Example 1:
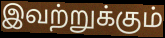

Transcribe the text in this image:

இவற்றுக்கும்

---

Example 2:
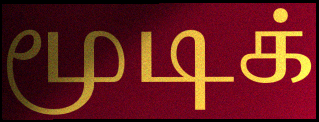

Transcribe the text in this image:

மூடிக்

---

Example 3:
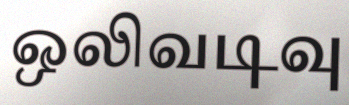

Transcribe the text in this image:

ஒலிவடிவு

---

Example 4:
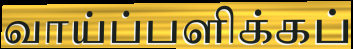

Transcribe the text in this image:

வாய்ப்பளிக்கப்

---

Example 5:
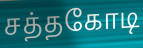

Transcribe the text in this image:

சத்தகோடி